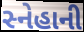
સ્નેહાની